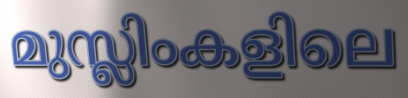
മുസ്ലിംകളിലെ